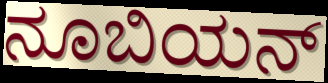
ನೂಬಿಯನ್